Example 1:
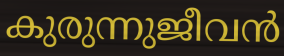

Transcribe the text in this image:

കുരുന്നുജീവൻ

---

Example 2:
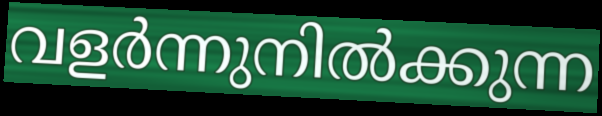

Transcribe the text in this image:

വളർന്നുനിൽക്കുന്ന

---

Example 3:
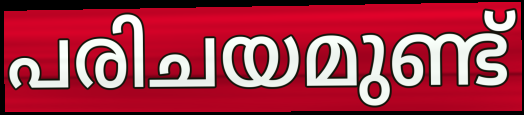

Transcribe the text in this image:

പരിചയമുണ്ട്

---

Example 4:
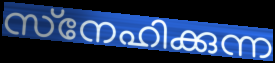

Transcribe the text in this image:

സ്‌നേഹിക്കുന്ന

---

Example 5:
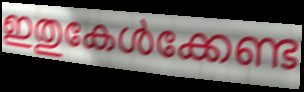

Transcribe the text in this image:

ഇതുകേൾക്കേണ്ട